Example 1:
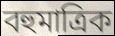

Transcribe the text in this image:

বহুমাত্ৰিক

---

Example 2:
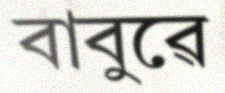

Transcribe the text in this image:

বাবুৱে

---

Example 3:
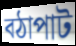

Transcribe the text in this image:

বঠাপাট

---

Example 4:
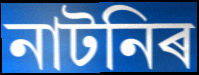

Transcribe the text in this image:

নাটনিৰ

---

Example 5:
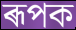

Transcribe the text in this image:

ৰূপক